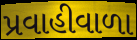
પ્રવાહીવાળા